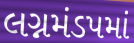
લગ્નમંડપમાં